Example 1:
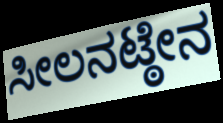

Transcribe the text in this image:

ಸೀಲನಟ್ಠೇನ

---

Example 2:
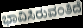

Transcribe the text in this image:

ಭಾವಿಸಿರುವಂತಿದೆ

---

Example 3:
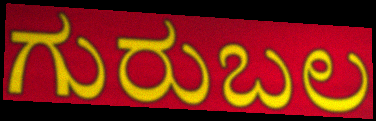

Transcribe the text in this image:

ಗುರುಬಲ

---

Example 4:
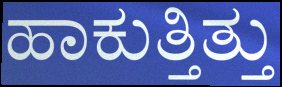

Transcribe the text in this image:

ಹಾಕುತ್ತಿತ್ತು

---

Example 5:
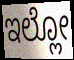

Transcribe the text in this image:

ಇಲ್ಲೋ